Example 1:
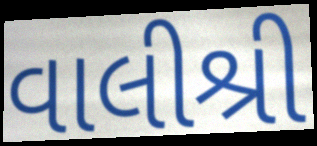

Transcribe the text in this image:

વાલીશ્રી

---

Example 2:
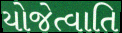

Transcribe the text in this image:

યોજેત્વાતિ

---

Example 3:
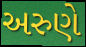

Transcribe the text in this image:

અરુણે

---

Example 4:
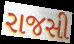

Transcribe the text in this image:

રાજસી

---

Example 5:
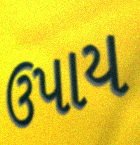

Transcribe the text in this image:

ઉપાય